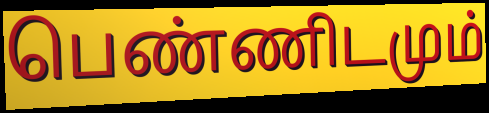
பெண்ணிடமும்